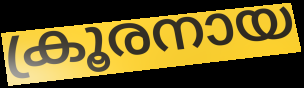
ക്രൂരനായ